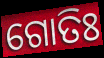
ଗୋତିଃ